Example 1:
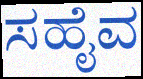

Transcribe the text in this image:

ಸಹೈವ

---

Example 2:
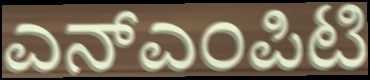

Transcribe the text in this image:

ಎನ್ಎಂಪಿಟಿ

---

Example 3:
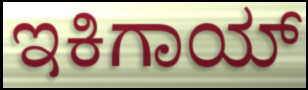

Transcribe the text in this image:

ಇಕಿಗಾಯ್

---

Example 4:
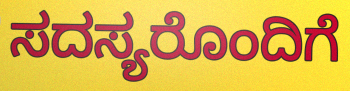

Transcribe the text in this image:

ಸದಸ್ಯರೊಂದಿಗೆ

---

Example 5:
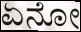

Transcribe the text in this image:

ಏನೋ